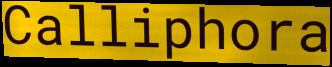
Calliphora